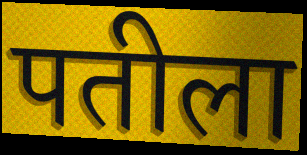
पतीला